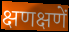
क्षणक्षणें